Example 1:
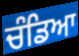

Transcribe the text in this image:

ਚੰਡਿਆ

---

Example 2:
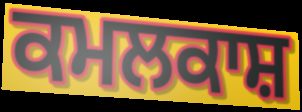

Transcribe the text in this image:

ਕਮਲਕਾਸ਼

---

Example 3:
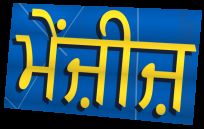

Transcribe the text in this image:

ਮੇਂਜ਼ੀਜ਼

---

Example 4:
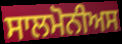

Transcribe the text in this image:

ਸਾਲਮੋਨੀਅਸ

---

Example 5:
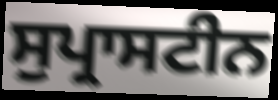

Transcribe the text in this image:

ਸੁਪ੍ਰਾਸਟੀਨ